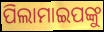
ପିଲାମାଇପଙ୍କୁ